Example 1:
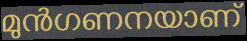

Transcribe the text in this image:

മുൻഗണനയാണ്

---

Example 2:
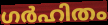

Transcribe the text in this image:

ഗർഹിതം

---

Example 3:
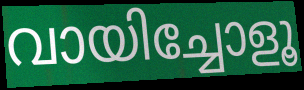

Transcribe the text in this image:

വായിച്ചോളൂ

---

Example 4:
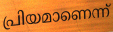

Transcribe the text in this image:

പ്രിയമാണെന്ന്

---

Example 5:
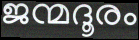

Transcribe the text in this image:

ജന്മദൂരം